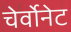
चेर्वोनेट